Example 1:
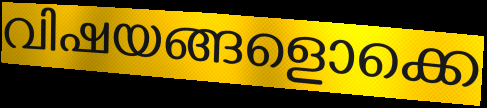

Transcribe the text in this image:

വിഷയങ്ങളൊക്കെ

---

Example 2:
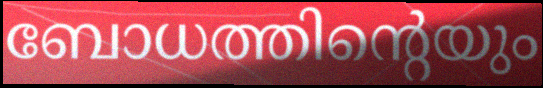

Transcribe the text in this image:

ബോധത്തിന്റെയും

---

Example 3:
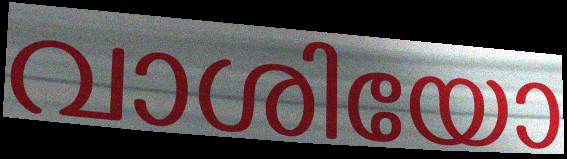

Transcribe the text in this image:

വാശിയോ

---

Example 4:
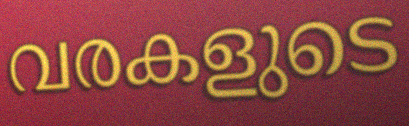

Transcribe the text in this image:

വരകളുടെ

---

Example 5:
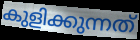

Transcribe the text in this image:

കുളിക്കുന്നത്